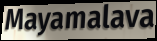
Mayamalava